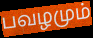
பவழமும்